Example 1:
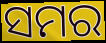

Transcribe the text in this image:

ସମର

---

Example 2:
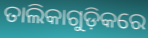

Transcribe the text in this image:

ତାଲିକାଗୁଡ଼ିକରେ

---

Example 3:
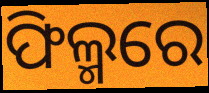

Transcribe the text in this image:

ଫିଲ୍ମରେ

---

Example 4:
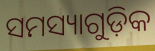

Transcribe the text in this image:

ସମସ୍ୟାଗୁଡ଼ିକ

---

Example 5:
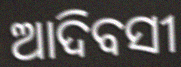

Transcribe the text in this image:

ଆଦିବସୀ